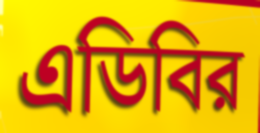
এডিবির